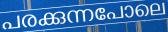
പരക്കുന്നപോലെ